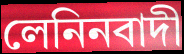
লেনিনবাদী